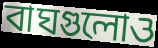
বাঘগুলোও